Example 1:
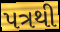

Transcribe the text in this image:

પત્રથી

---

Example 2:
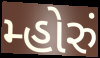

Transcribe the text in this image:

મ્હોરું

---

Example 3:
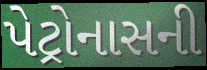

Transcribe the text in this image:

પેટ્રોનાસની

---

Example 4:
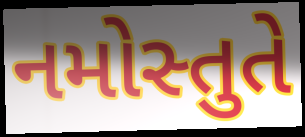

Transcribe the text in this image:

નમોસ્તુતે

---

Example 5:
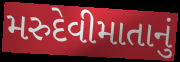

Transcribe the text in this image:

મરુદેવીમાતાનું